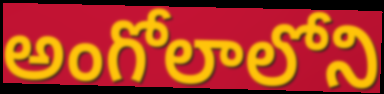
అంగోలాలోని